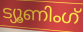
ട്യൂണിംഗ്